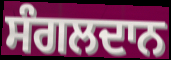
ਸੰਗਲਦਾਨ